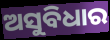
ଅସୁବିଧାର